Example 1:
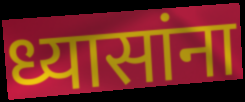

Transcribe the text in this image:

ध्यासांना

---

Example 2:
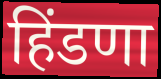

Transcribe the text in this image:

हिंडणा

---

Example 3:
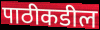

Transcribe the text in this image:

पाठीकडील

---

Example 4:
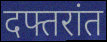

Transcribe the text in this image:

दफ्तरांत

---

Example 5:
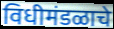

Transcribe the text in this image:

विधीमंडळाचे